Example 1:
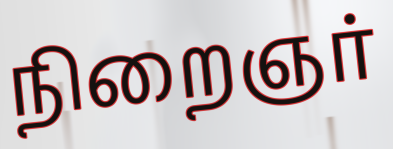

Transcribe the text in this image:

நிறைஞர்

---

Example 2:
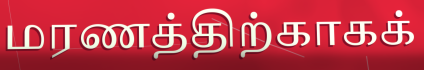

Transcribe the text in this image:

மரணத்திற்காகக்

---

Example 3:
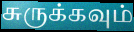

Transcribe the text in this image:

சுருக்கவும்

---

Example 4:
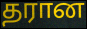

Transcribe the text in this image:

தரான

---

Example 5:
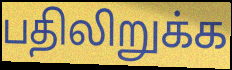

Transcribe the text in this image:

பதிலிறுக்க